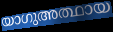
യാഗുഅത്ഥായ